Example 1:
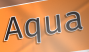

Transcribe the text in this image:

Aqua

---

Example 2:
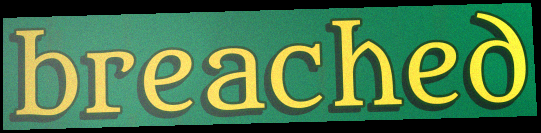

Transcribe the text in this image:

breached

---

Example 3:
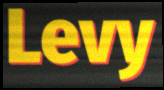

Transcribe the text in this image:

Levy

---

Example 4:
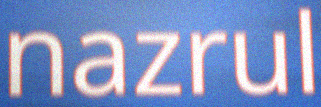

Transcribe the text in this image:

nazrul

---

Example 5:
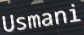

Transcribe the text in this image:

Usmani